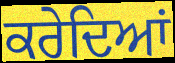
ਕਰੇਦਿਆਂ